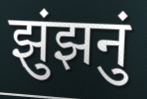
झुंझनुं